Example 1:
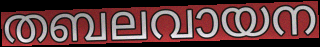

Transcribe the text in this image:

തബലവായന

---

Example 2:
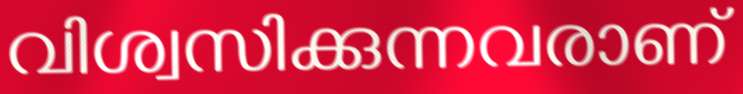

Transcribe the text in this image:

വിശ്വസിക്കുന്നവരാണ്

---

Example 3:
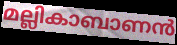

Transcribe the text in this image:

മല്ലികാബാണൻ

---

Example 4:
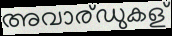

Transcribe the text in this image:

അവാര്ഡുകള്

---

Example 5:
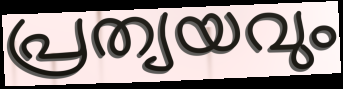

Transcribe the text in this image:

പ്രത്യയവും